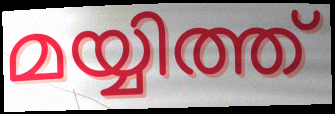
മയ്യിത്ത്